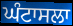
ਘੰਟਾਸਲਾ